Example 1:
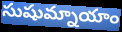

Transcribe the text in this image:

సుషుమ్నాయాం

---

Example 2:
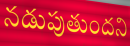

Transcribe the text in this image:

నడుపుతుందని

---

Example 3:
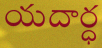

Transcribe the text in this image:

యదార్ధ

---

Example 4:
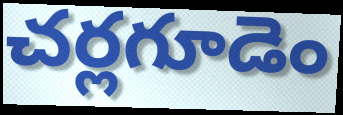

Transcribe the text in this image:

చర్లగూడెం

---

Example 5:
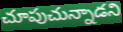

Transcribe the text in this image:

చూపుచున్నాడని